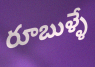
రూబుళ్ళే